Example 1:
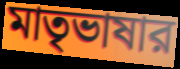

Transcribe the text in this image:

মাতৃভাষার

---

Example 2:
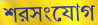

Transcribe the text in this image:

শরসংযোগ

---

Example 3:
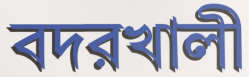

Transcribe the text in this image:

বদরখালী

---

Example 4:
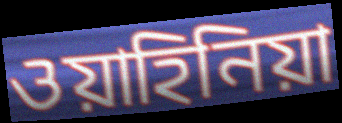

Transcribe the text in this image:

ওয়াহিনিয়া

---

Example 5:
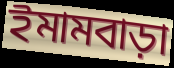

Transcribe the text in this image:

ইমামবাড়া